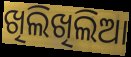
ଖିଲିଖିଲିଆ